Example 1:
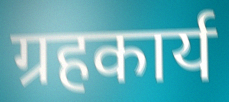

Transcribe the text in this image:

ग्रहकार्य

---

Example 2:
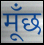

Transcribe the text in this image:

मूँछ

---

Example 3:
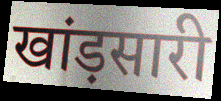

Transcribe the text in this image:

खांड़सारी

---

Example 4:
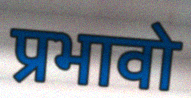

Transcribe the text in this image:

प्रभावो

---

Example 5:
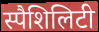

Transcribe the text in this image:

स्पैशिलिटी